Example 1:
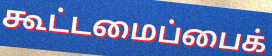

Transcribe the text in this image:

கூட்டமைப்பைக்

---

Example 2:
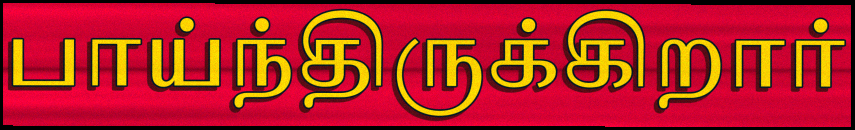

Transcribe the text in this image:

பாய்ந்திருக்கிறார்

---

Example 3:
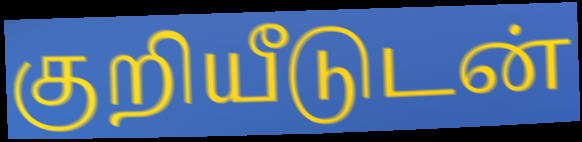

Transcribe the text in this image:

குறியீடுடன்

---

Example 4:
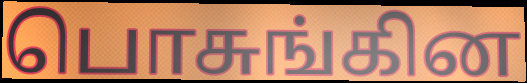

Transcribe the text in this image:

பொசுங்கின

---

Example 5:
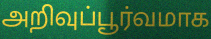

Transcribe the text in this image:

அறிவுப்பூர்வமாக